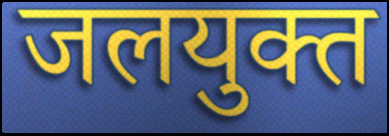
जलयुक्त